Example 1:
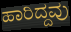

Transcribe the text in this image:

ಹಾರಿದ್ದವು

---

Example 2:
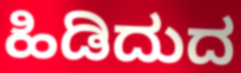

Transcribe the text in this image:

ಹಿಡಿದುದ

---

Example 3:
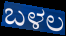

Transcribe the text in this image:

ಬಳಲ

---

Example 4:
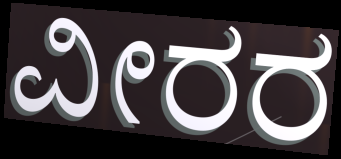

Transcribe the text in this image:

ವೀರರ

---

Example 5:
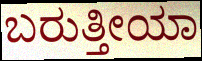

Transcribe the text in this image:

ಬರುತ್ತೀಯಾ